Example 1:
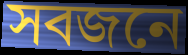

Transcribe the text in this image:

সবজনে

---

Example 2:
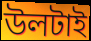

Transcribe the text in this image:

উলটাই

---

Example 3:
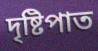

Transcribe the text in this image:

দৃষ্টিপাত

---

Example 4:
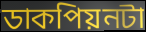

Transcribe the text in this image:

ডাকপিয়নটা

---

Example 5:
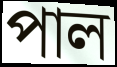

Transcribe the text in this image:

পাল